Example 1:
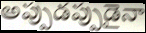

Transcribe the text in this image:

అప్పుడప్పుడైనా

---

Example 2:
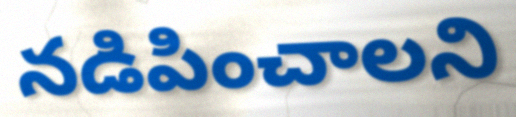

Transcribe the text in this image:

నడిపించాలని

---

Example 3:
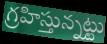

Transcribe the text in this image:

గ్రహిస్తున్నట్టు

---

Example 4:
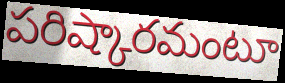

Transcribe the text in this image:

పరిష్కారమంటూ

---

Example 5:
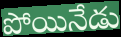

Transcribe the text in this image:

పోయినేడు